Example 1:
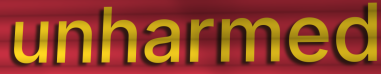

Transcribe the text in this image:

unharmed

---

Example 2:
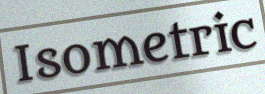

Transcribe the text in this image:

Isometric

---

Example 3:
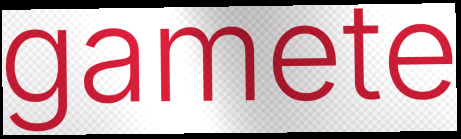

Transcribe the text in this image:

gamete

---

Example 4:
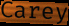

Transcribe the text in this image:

Carey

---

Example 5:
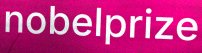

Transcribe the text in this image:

nobelprize